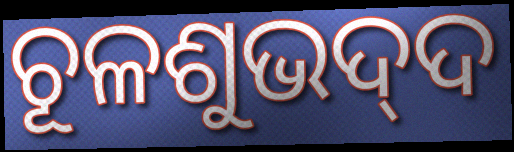
ଚୂଳଶୁଭଦ୍‍ଦ